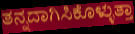
ತನ್ನದಾಗಿಸಿಕೊಳ್ಳುತ್ತಾ